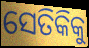
ସେତିକିକୁ